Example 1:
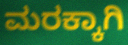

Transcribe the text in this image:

ಮರಕ್ಕಾಗಿ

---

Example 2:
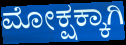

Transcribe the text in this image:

ಮೋಕ್ಷಕ್ಕಾಗಿ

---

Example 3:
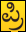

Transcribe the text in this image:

ಪ್ರಿ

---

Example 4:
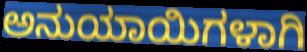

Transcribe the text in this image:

ಅನುಯಾಯಿಗಳಾಗಿ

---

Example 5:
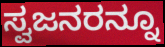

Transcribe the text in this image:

ಸ್ವಜನರನ್ನೂ